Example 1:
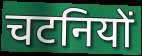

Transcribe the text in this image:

चटनियों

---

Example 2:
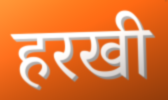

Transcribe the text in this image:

हरखी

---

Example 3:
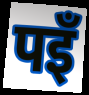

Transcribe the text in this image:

पइँ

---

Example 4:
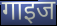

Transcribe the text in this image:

गाइज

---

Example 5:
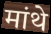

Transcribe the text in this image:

मांथे